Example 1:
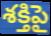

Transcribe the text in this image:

శక్తిపై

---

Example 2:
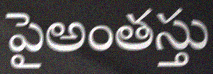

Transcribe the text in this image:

పైఅంతస్తు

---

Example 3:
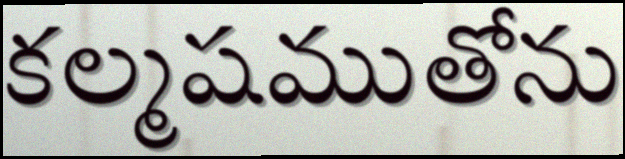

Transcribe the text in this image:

కల్మషముతోను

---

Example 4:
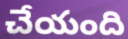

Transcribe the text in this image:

చేయంది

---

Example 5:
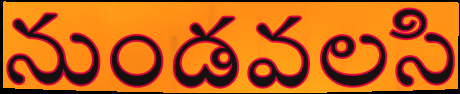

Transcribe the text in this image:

నుండవలసి